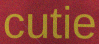
cutie